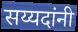
सय्यदांनी